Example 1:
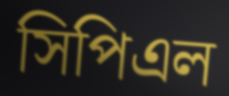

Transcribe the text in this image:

সিপিএল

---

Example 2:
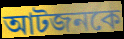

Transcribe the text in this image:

আটজনকে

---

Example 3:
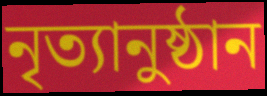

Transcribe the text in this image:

নৃত্যানুষ্ঠান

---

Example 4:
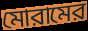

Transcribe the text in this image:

মোরামের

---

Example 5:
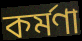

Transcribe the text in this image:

কর্মণা